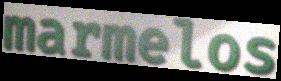
marmelos